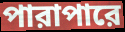
পারাপারে